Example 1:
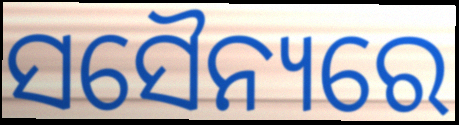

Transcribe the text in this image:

ସସୈନ୍ୟରେ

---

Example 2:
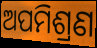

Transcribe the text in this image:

ଅପମିଶ୍ରଣ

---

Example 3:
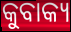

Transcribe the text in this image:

କୁବାକ୍ୟ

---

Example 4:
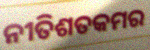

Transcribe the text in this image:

ନୀତିଶତକମର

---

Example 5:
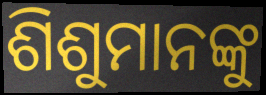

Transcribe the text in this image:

ଶିଶୁମାନଙ୍କୁ